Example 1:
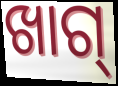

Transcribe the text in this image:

ଖାଗ୍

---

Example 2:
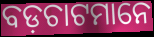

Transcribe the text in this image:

ବଡ଼ଚାଟମାନେ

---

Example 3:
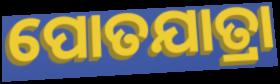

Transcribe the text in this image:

ପୋତଯାତ୍ରା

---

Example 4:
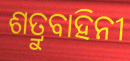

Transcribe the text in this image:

ଶତ୍ରୁବାହିନୀ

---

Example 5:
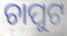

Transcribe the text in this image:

ଚାପୁଟ